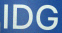
IDG